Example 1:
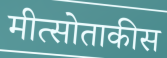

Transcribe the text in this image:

मीत्सोताकीस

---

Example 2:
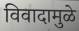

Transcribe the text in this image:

विवादामुळे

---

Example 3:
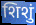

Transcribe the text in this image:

शिशुं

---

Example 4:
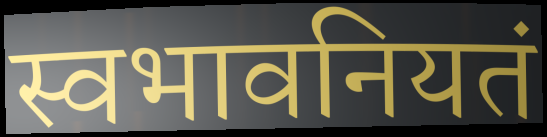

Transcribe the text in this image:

स्वभावनियतं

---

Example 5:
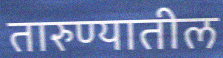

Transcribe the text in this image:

तारुण्यातील